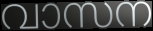
വാസന